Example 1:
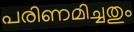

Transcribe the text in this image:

പരിണമിച്ചതും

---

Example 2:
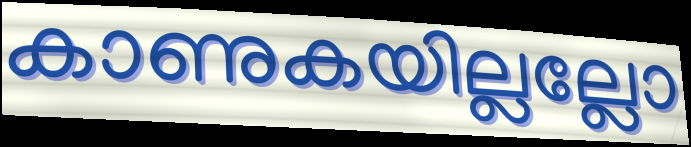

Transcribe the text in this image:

കാണുകയില്ലല്ലോ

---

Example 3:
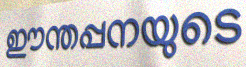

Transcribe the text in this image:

ഈന്തപ്പനയുടെ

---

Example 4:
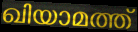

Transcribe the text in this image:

ഖിയാമത്ത്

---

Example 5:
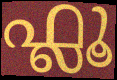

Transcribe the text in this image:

ഫ്ലൂ